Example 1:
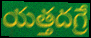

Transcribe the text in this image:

యత్తదగ్రే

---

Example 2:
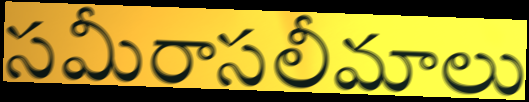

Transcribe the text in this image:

సమీరాసలీమాలు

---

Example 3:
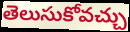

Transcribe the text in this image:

తెలుసుకోవచ్చు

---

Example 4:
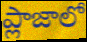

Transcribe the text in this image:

ప్లాజాలో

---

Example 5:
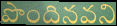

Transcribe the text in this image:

పొందినవని